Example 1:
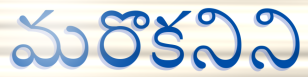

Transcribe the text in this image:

మరొకనిని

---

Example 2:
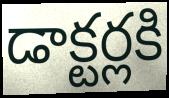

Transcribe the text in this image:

డాక్టర్లకి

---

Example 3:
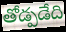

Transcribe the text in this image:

తోడ్పడేది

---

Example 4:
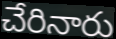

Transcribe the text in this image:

చేరినారు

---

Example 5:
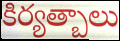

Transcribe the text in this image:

కిర్యత్బాలు